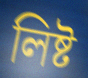
লিষ্ট